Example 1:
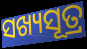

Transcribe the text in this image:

ସଖ୍ୟସୂତ୍ର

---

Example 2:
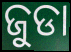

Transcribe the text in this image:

ଜୁଡା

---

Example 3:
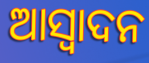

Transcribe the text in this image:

ଆସ୍ଵାଦନ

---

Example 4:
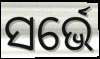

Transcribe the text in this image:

ସର୍ଭେ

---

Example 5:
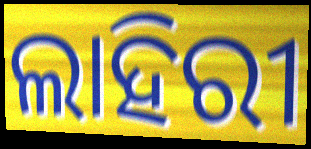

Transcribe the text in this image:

ଲାହିରୀ